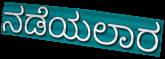
ನಡೆಯಲಾರ